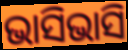
ଭାସିଭାସି